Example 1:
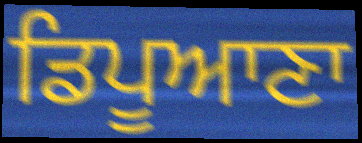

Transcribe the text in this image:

ਡਿਪੂਆਣਾ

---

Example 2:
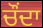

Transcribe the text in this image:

ਚੌਂਦਾ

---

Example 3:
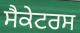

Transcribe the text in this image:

ਸੈਕੇਟਰਸ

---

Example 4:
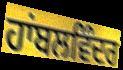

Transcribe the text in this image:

ਹਾਂਬਲਵਿੰਦਰ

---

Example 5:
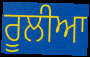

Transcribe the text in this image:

ਰੂਲੀਆ